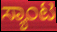
ಸ್ಯಾಂಟ